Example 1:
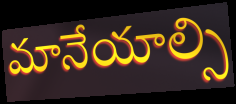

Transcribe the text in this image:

మానేయాల్సి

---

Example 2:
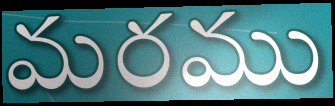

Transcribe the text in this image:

మరము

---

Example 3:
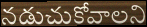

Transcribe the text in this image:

నడుచుకోవాలని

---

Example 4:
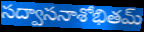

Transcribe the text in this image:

సద్వాసనాశోభితమ్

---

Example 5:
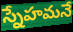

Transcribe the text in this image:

స్నేహమనే